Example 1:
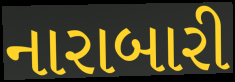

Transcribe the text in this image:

નારાબારી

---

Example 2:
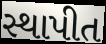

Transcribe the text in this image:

સ્થાપીત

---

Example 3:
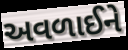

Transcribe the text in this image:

અવળાઈને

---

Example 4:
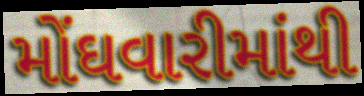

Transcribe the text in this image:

મોંઘવારીમાંથી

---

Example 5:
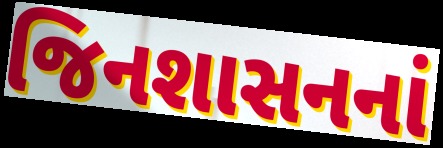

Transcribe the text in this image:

જિનશાસનનાં